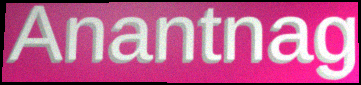
Anantnag